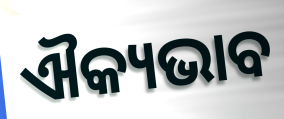
ଐକ୍ୟଭାବ